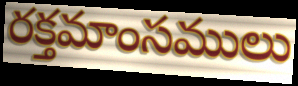
రక్తమాంసములు